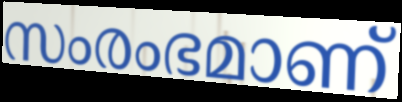
സംരംഭമാണ്